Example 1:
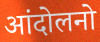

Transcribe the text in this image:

आंदोलनो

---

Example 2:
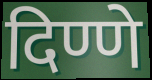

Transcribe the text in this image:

दिण्णे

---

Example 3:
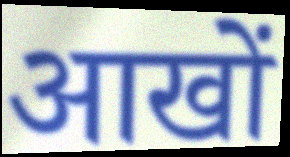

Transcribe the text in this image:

आखों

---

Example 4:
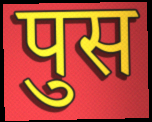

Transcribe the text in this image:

पुस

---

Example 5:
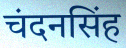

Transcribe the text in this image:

चंदनसिंह